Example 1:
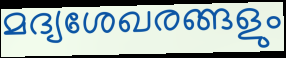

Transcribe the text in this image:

മദ്യശേഖരങ്ങളും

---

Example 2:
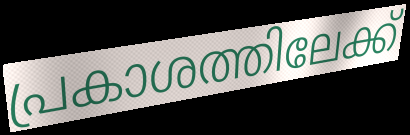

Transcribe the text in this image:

പ്രകാശത്തിലേക്ക്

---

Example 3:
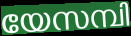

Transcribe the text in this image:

യേസമ്പി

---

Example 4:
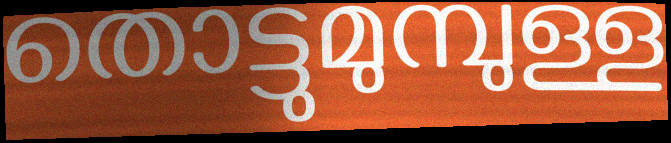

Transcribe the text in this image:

തൊട്ടുമുമ്പുള്ള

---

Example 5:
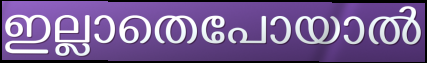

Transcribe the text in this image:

ഇല്ലാതെപോയാൽ